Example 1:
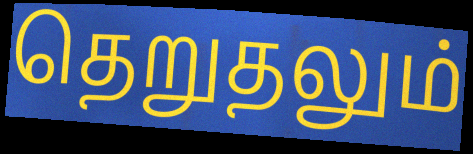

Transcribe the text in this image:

தெறுதலும்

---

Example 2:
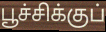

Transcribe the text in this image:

பூச்சிக்குப்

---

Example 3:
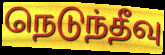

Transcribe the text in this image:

நெடுந்தீவு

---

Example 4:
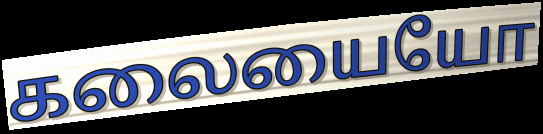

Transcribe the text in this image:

கலையையோ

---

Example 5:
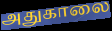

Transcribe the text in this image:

அதுகாலை